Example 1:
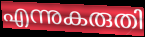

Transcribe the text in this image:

എന്നുകരുതി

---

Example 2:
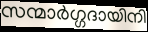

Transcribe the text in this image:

സന്മാർഗ്ഗദായിനി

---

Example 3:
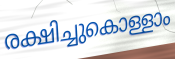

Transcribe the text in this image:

രക്ഷിച്ചുകൊള്ളാം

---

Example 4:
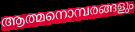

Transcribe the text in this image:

ആത്മനൊമ്പരങ്ങളും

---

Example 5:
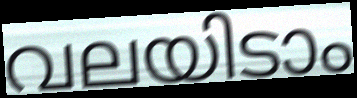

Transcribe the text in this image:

വലയിടാം